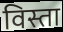
विस्ता